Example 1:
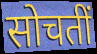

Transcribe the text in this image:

सोचतीं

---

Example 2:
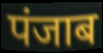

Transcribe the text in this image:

पंजाब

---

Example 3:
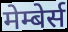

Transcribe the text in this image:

मेम्बेर्स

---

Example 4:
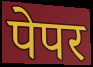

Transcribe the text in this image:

पेपर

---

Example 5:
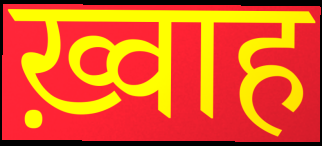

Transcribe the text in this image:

ख़्वाह